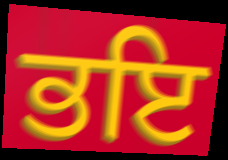
ਭਇ